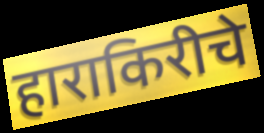
हाराकिरीचे